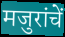
मजुरांचें